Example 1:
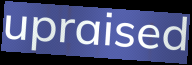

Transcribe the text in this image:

upraised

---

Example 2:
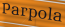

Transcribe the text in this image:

Parpola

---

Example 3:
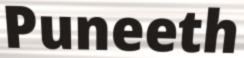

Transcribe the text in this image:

Puneeth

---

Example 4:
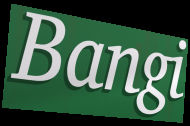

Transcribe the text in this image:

Bangi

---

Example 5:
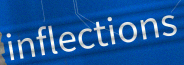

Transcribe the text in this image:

inflections